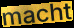
macht